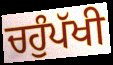
ਚਹੁੰਪੱਖੀ